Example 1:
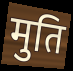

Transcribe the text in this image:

मुति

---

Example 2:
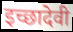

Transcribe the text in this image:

इच्छादेवी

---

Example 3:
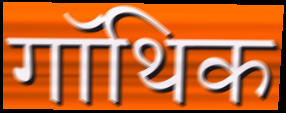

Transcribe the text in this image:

गॉथिक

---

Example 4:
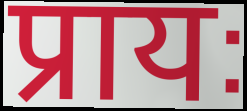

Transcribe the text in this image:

प्रायः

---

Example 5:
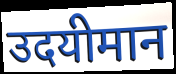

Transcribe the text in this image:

उदयीमान